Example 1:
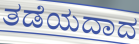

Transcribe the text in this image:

ತಡೆಯದಾದ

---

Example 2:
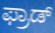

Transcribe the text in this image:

ಫ್ರಾಡ್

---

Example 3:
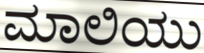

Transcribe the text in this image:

ಮಾಲಿಯು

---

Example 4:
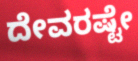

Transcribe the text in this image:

ದೇವರಷ್ಟೇ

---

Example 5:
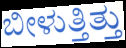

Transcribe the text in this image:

ಬೀಳುತ್ತಿತ್ತು